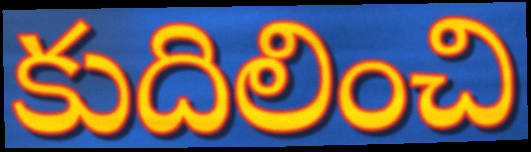
కుదిలించి